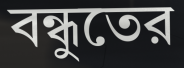
বন্ধুতের